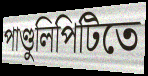
পাণ্ডুলিপিটিতে